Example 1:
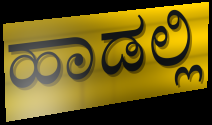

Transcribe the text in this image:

ಹಾಡಲ್ಲಿ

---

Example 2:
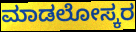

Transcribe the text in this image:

ಮಾಡಲೋಸ್ಕರ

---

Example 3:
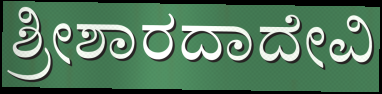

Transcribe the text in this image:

ಶ್ರೀಶಾರದಾದೇವಿ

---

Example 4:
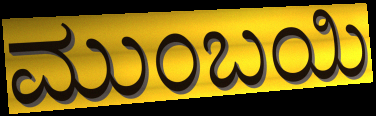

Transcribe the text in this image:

ಮುಂಬಯಿ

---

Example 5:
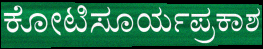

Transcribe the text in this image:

ಕೋಟಿಸೂರ್ಯಪ್ರಕಾಶ